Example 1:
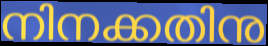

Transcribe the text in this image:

നിനക്കതിനു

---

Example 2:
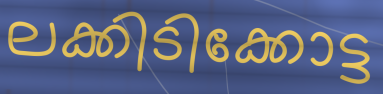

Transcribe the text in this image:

ലക്കിടിക്കോട്ട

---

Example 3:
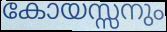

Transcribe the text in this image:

കോയസ്സനും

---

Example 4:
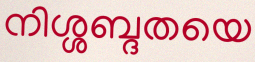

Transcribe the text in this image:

നിശ്ശബ്ദതയെ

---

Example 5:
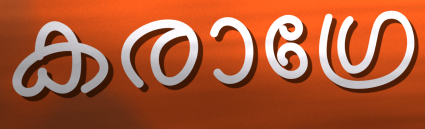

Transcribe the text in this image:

കരാഗ്രേ